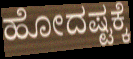
ಹೋದಷ್ಟಕ್ಕೆ